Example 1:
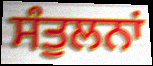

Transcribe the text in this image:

ਸੰਤੁਲਨਾਂ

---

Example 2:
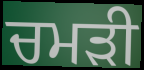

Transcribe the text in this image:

ਚਮਡ਼ੀ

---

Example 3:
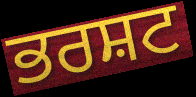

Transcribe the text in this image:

ਭਰਸ਼ਟ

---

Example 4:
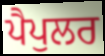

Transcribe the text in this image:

ਪੈਪੁਲਰ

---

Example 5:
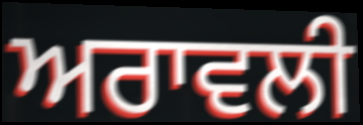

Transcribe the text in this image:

ਅਰਾਵਲੀ